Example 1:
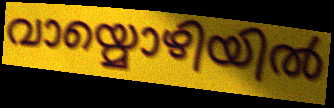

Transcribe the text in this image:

വായ്മൊഴിയിൽ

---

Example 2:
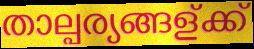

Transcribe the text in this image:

താല്പര്യങ്ങള്ക്ക്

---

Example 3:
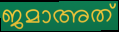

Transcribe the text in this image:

ജമാഅത്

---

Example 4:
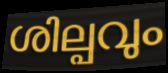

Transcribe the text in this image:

ശില്പവും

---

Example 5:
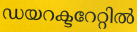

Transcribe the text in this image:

ഡയറക്ടറേറ്റിൽ